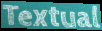
Textual